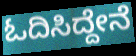
ಓದಿಸಿದ್ದೇನೆ